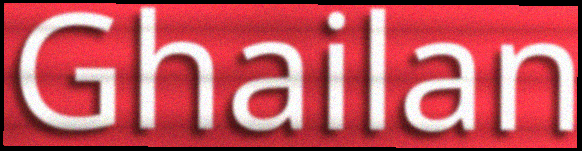
Ghailan